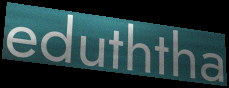
eduththa